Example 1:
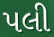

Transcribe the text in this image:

પલી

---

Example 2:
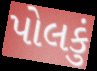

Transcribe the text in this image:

પોલકું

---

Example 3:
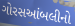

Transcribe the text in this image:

ગોરસઆંબલીનો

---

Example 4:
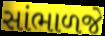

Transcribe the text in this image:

સાંભાળજે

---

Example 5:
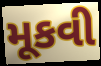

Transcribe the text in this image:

મૂકવી